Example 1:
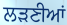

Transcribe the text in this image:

ਲੜਣੀਆਂ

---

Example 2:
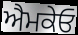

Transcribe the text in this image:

ਐਮਕੇਓ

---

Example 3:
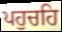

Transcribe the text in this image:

ਪਹੁਚਹਿ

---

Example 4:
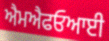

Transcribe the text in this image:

ਐਮਐਫਓਆਈ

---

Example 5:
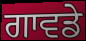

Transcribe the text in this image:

ਗਾਵਡੇ